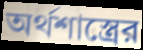
অর্থশাস্ত্রের